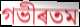
গভীৰতম